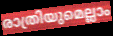
രാത്രിയുമെല്ലാം